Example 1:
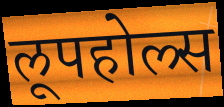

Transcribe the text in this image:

लूपहोल्स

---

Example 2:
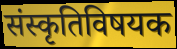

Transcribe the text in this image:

संस्कृतिविषयक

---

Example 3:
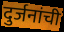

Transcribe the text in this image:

दुर्जनांची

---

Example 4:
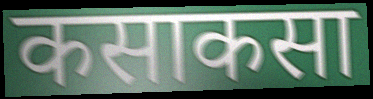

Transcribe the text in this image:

कसाकसा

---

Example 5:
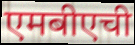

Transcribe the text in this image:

एमबीएची